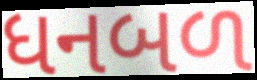
ધનબળ